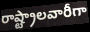
రాష్ట్రాలవారీగా